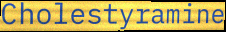
Cholestyramine